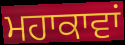
ਮਹਾਕਾਵਾਂ